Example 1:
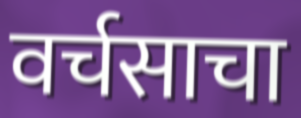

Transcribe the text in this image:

वर्चसाचा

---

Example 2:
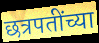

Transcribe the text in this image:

छत्रपतींच्या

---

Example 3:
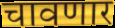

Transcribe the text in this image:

चावणार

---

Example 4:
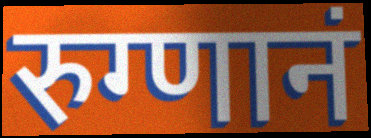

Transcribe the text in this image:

रुग्णानं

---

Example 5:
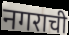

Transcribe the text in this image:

नगराची